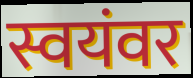
स्वयंवर